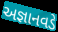
અજ્ઞાનવડે